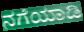
ನಗೆಯಾಡಿ